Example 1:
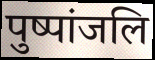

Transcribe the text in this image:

पुष्‍पांजलि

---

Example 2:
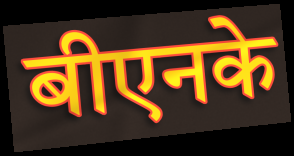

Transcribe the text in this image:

बीएनके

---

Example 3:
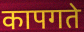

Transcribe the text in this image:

कापगते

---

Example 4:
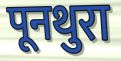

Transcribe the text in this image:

पूनथुरा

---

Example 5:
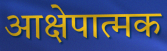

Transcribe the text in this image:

आक्षेपात्मक